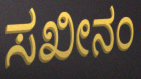
ಸಖೀನಂ